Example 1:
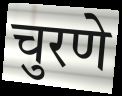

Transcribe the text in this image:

चुरणे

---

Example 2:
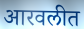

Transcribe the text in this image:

आरवलीत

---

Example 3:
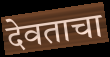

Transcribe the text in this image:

देवताचा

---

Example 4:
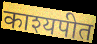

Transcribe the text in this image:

काश्यपीत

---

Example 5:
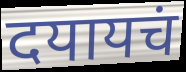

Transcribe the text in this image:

दयायचं